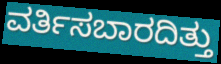
ವರ್ತಿಸಬಾರದಿತ್ತು